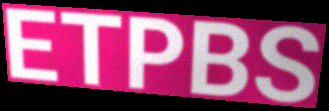
ETPBS